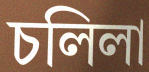
চলিলা